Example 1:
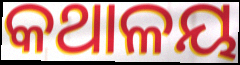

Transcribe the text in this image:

କଥାଳୟ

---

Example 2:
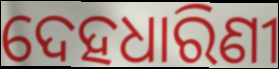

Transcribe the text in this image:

ଦେହଧାରିଣୀ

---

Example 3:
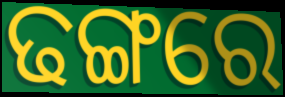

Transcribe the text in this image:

ଢଙ୍ଗରେ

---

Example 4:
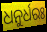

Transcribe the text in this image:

ଧନୁର୍ଧରଃ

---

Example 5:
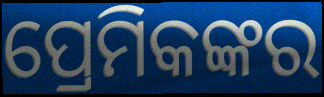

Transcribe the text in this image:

ପ୍ରେମିକଙ୍କର